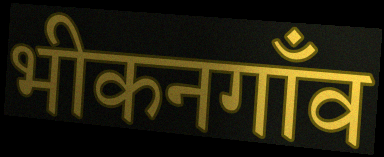
भीकनगाँव